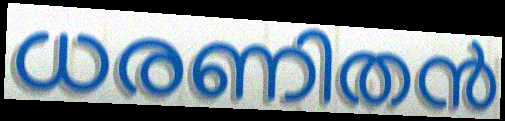
ധരണിതൻ